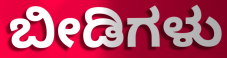
ಬೀಡಿಗಳು